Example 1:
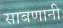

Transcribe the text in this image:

साबणानी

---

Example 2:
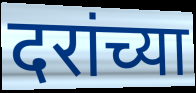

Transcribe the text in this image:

दरांच्या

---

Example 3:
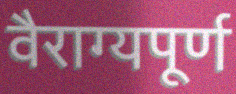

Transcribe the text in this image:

वैराग्यपूर्ण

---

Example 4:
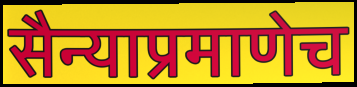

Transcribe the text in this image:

सैन्याप्रमाणेच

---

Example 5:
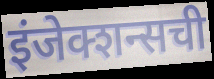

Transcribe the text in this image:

इंजेक्शन्सची